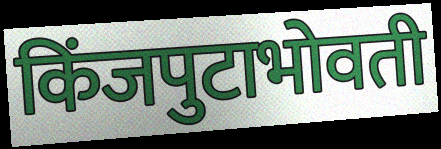
किंजपुटाभोवती